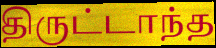
திருட்டாந்த